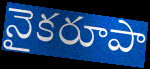
నైకరూపా